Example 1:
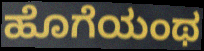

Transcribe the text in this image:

ಹೊಗೆಯಂಥ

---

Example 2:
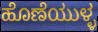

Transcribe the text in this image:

ಹೊಣೆಯುಳ್ಳ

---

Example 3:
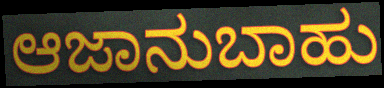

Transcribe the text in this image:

ಆಜಾನುಬಾಹು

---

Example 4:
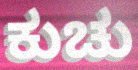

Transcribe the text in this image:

ಕುಚು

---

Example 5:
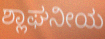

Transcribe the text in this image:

ಶ್ಲಾಘನೀಯ